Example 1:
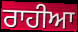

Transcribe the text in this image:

ਰਾਹੀਆ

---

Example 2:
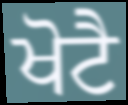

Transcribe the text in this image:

ਖੋਟੈ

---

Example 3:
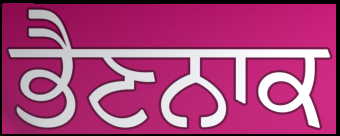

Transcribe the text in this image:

ਭੈਣਨਾਕ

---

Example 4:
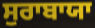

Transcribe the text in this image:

ਸੁਰਾਬਾਯਾ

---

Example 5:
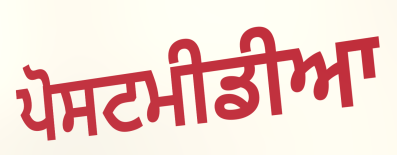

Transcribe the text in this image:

ਪੋਸਟਮੀਡੀਆ